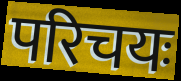
परिचयः